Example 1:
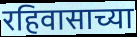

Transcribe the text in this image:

रहिवासाच्या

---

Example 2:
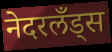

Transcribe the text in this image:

नेदरलँड्स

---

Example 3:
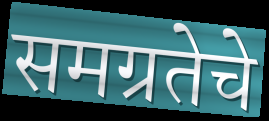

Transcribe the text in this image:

समग्रतेचे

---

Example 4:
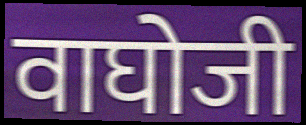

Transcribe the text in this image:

वाघोजी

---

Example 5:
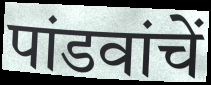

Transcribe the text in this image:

पांडवांचें